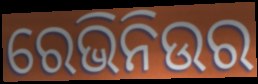
ରେଭିନିଉର